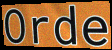
Orde